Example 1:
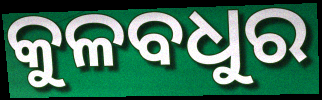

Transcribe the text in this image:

କୁଳବଧୁର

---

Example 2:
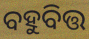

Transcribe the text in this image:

ବହୁବିତ୍ତ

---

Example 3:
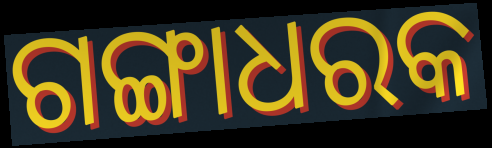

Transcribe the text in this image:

ଗଙ୍ଗାଧରକ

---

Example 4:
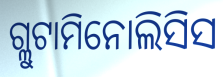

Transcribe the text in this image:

ଗ୍ଲୁଟାମିନୋଲିସିସ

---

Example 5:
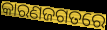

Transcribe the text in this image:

କାରଣଜଗତରେ